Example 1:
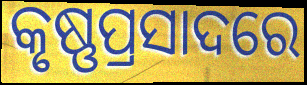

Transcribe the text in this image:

କୃଷ୍ଣପ୍ରସାଦରେ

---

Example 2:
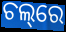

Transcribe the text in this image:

ଚଲ୍‌ରେ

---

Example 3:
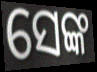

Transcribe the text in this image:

ସେଙ୍କ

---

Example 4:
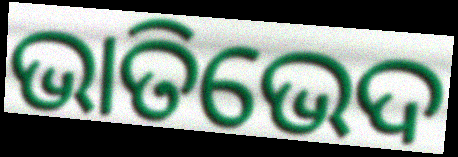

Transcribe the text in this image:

ଭାତିଭେଦ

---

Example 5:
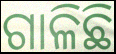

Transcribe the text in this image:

ଗାଳିଛି